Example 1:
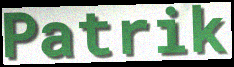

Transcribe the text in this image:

Patrik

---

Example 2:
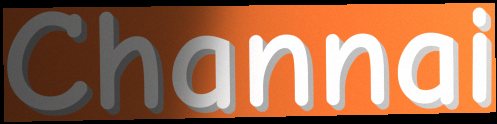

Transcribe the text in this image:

Channai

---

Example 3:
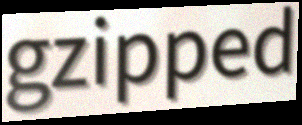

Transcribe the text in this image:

gzipped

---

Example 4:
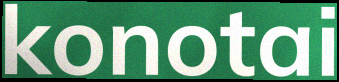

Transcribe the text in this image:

konotai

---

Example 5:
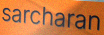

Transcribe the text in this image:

sarcharan